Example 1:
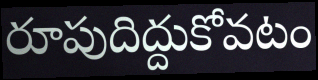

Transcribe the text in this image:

రూపుదిద్దుకోవటం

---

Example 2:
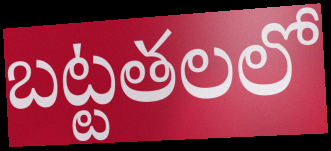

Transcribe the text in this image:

బట్టతలలో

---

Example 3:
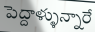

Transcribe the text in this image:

పెద్దాళ్ళున్నారే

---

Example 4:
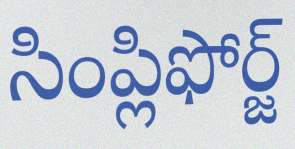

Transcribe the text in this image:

సింప్లిఫోర్జ్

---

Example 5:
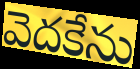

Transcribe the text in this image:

వెదకేను